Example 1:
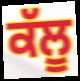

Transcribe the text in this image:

ਕੱਲੂ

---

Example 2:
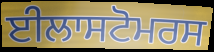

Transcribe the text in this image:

ਈਲਾਸਟੋਮਰਸ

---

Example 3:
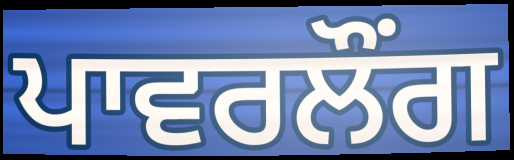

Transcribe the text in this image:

ਪਾਵਰਲੌਂਗ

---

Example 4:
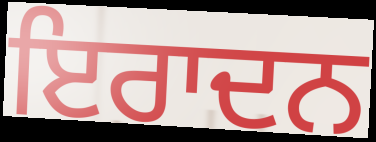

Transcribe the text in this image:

ਇਰਾਦਨ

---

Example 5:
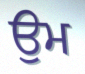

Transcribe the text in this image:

ਉਮ